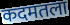
कदमतला